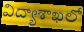
విద్యాశాఖలో